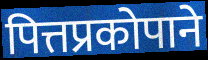
पित्तप्रकोपाने